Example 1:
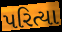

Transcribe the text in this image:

પરિત્યા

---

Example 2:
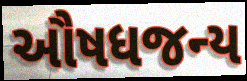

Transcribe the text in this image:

ઔષધજન્ય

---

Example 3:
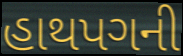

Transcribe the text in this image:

હાથપગની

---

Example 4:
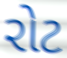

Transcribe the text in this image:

રોટ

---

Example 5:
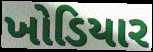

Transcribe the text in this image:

ખોડિયાર